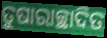
ତୁଷାରାଚ୍ଛାଦିତ